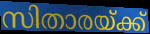
സിതാരയ്ക്ക്